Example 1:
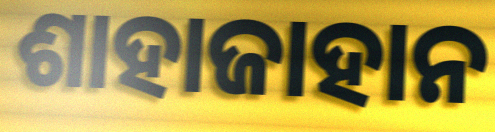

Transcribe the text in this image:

ଶାହାଜାହାନ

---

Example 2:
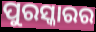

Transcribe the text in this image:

ପୁରସ୍କାରର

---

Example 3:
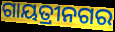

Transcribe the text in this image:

ଗାୟତ୍ରୀନଗର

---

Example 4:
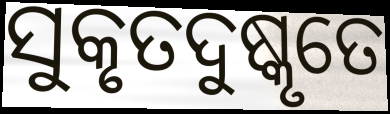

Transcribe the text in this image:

ସୁକୃତଦୁଷ୍କୃତେ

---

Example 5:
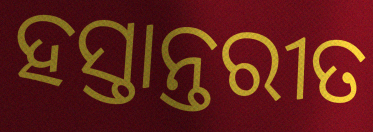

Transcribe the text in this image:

ହସ୍ତାନ୍ତରୀତ